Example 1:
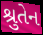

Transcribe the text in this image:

શ્રુતેન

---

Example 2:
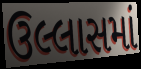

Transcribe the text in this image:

ઉલ્લાસમાં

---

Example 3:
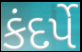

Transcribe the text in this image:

કંદર્પે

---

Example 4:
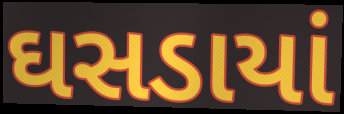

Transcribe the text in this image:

ઘસડાયાં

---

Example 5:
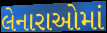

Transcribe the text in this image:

લેનારાઓમાં